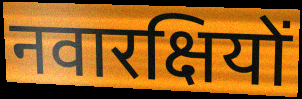
नवारक्षियों